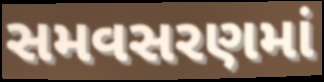
સમવસરણમાં